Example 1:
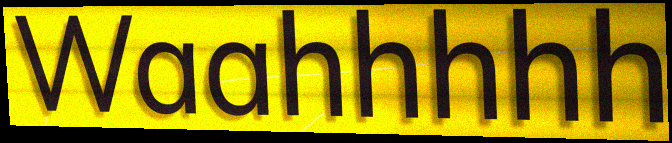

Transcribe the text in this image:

Waahhhhh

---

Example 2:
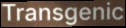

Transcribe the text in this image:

Transgenic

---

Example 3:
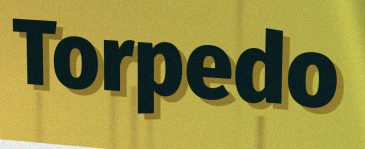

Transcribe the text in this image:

Torpedo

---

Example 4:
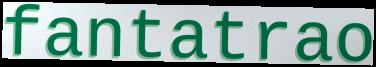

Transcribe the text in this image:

fantatrao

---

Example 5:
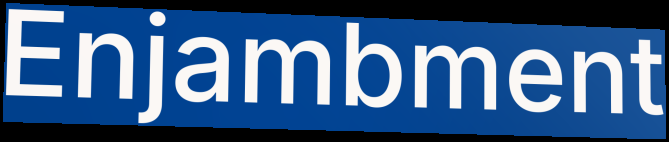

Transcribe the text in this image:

Enjambment